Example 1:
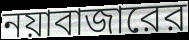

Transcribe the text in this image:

নয়াবাজারের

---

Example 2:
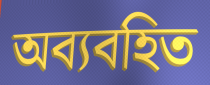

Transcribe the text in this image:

অব্যবহিত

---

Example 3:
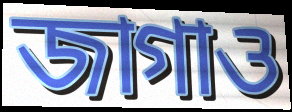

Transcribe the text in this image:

জাগাও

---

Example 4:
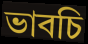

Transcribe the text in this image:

ভাবচি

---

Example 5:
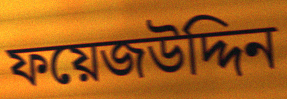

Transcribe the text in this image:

ফয়েজউদ্দিন